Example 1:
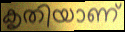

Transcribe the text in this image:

കൃതിയാണ്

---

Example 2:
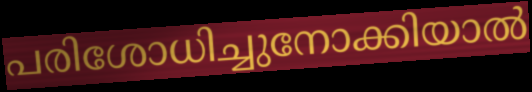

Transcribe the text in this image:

പരിശോധിച്ചുനോക്കിയാൽ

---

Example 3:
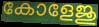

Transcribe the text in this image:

കോളേജു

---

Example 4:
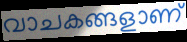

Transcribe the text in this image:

വാചകങ്ങളാണ്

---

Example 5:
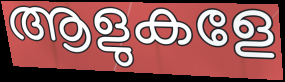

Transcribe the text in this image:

ആളുകളേ